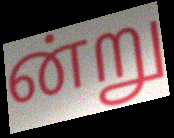
ன்று